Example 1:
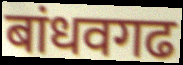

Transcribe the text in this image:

बांधवगढ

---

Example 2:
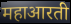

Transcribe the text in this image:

महाआरती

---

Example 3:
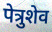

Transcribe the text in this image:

पेत्रुशेव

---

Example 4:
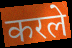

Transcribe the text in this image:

करले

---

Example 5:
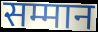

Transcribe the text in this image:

सम्‍मान